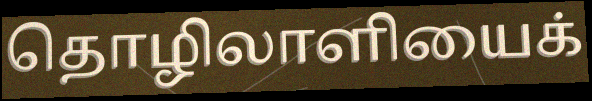
தொழிலாளியைக்